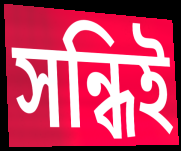
সন্ধিই